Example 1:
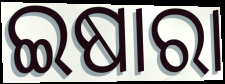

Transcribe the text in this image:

ଇଷାରା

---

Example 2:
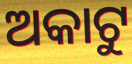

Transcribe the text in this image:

ଅକାଟୁ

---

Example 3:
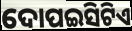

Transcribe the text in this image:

ଦୋପଇସିଟିଏ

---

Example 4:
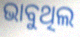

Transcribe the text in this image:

ଭାବୁଥିଲ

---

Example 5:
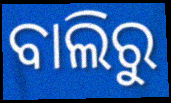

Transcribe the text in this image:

ବାଲିରୁ